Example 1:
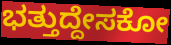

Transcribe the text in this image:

ಭತ್ತುದ್ದೇಸಕೋ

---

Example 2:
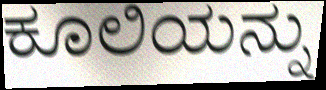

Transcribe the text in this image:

ಕೂಲಿಯನ್ನು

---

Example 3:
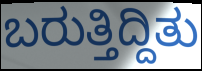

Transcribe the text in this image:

ಬರುತ್ತಿದ್ದಿತು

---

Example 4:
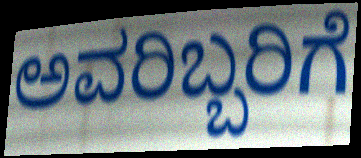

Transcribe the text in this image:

ಅವರಿಬ್ಬರಿಗೆ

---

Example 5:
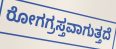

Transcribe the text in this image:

ರೋಗಗ್ರಸ್ತವಾಗುತ್ತದೆ